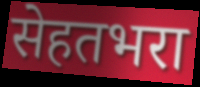
सेहतभरा